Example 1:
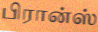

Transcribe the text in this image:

பிரான்ஸ்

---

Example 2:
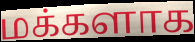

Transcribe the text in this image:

மக்களாக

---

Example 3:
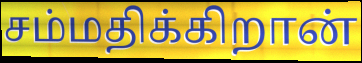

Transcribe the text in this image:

சம்மதிக்கிறான்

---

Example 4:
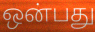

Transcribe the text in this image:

ஒன்பது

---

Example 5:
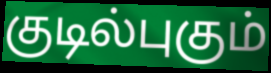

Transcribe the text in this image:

குடில்புகும்